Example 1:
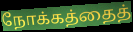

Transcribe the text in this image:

நோக்கத்தைத்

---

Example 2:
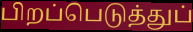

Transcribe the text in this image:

பிறப்பெடுத்துப்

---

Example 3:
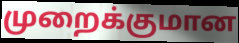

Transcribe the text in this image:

முறைக்குமான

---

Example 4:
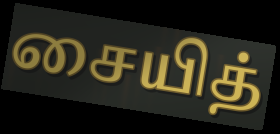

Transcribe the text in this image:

சையித்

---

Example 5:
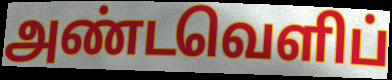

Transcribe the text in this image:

அண்டவெளிப்